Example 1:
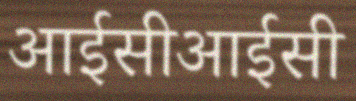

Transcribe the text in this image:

आईसीआईसी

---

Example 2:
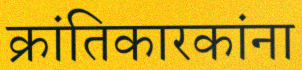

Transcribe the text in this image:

क्रांतिकारकांना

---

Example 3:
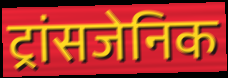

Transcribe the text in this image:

ट्रांसजेनिक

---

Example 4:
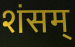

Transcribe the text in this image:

शंसम्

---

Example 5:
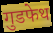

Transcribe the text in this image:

गुडफेथ